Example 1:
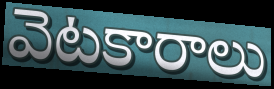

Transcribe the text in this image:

వెటకారాలు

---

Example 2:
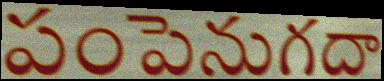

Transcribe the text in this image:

పంపెనుగదా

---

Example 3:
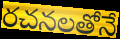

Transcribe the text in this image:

రచనలతోనే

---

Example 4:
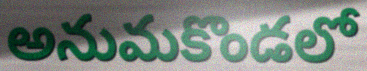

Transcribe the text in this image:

అనుమకొండలో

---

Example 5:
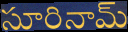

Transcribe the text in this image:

సూరినామ్